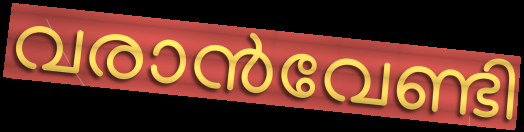
വരാൻവേണ്ടി